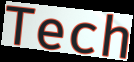
Tech